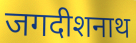
जगदीशनाथ